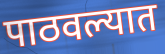
पाठवल्यात